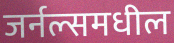
जर्नल्समधील